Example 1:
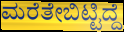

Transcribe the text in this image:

ಮರೆತೇಬಿಟ್ಟಿದ್ದೆ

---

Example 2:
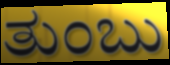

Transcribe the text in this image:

ತುಂಬು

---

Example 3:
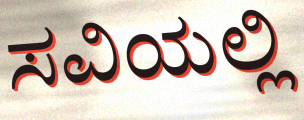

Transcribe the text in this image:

ಸವಿಯಲ್ಲಿ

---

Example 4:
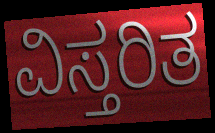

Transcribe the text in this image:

ವಿಸ್ತರಿತ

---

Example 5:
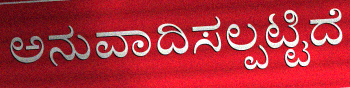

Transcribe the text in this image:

ಅನುವಾದಿಸಲ್ಪಟ್ಟಿದೆ